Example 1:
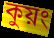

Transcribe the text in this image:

কুয়ং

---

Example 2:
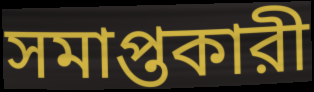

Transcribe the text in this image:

সমাপ্তকারী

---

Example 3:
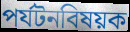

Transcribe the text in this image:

পর্যটনবিষয়ক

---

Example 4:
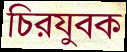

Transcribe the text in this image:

চিরযুবক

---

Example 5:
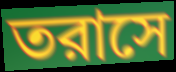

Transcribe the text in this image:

তরাসে